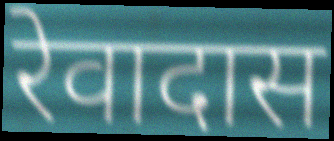
रेवादास